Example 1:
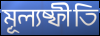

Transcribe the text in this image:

মূল্যষ্ফীতি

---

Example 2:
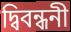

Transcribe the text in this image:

দ্বিবন্ধনী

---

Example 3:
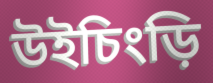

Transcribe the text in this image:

উইচিংড়ি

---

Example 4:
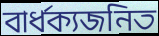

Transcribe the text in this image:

বার্ধক্যজনিত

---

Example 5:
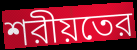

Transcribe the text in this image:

শরীয়তের